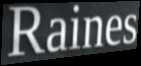
Raines